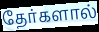
தேர்களால்